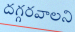
దగ్గరవాలని